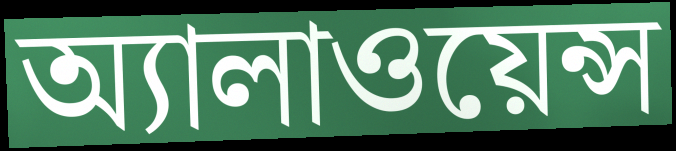
অ্যালাওয়েন্স